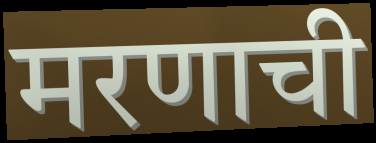
मरणाची